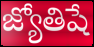
జ్యోతిషే